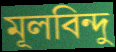
মূলবিন্দু